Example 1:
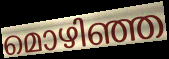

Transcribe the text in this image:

മൊഴിഞ്ഞ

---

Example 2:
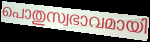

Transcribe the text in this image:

പൊതുസ്വഭാവമായി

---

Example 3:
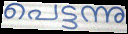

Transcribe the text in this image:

പെട്ടന്നു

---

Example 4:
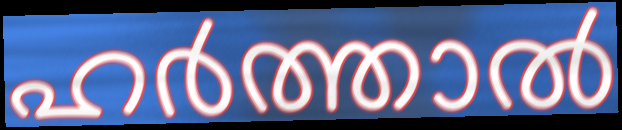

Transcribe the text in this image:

ഹർത്താൽ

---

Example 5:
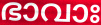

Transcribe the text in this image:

ഭാവാഃ